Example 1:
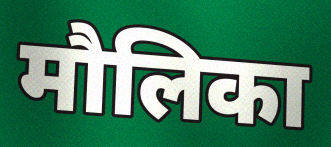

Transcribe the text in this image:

मौलिका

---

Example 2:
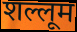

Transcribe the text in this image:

शल्लूम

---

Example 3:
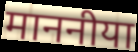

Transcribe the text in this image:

माननीया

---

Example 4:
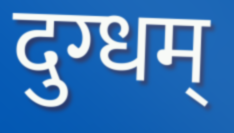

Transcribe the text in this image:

दुग्धम्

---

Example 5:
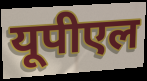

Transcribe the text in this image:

यूपीएल